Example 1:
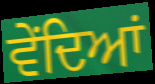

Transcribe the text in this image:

ਵੇਂਦਿਆਂ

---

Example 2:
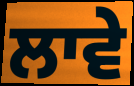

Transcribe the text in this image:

ਲਾਵੇ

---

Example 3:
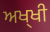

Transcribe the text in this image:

ਅਖ੍ਖੀ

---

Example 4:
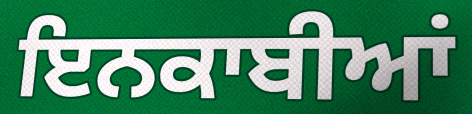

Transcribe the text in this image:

ਇਨਕਾਬੀਆਂ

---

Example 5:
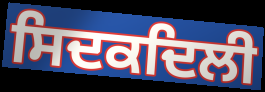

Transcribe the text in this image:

ਸਿਦਕਦਿਲੀ